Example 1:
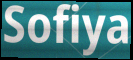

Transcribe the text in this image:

Sofiya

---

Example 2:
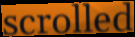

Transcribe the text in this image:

scrolled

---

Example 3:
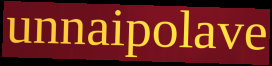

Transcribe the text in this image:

unnaipolave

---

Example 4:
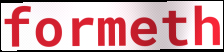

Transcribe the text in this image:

formeth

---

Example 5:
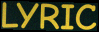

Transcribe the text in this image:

LYRIC